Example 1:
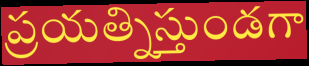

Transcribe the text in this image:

ప్రయత్నిస్తుండగా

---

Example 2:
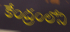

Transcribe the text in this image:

కేంద్రంలోని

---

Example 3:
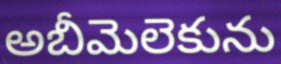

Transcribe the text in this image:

అబీమెలెకును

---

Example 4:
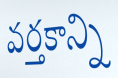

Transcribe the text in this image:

వర్తకాన్ని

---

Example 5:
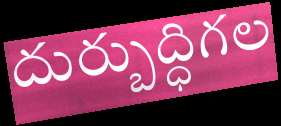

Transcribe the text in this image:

దుర్బుద్ధిగల